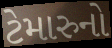
ટેમારુનો